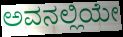
ಅವನಲ್ಲಿಯೇ